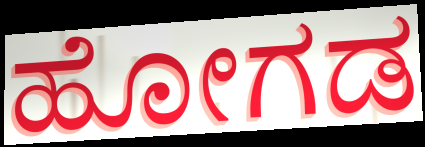
ಹೋಗಡ